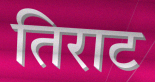
तिराट